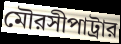
মৌরসীপাট্রার